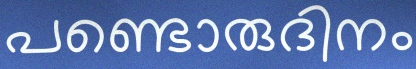
പണ്ടൊരുദിനം